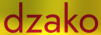
dzako